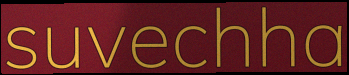
suvechha